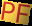
PF